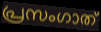
പ്രസംഗാത്